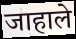
जाहाले